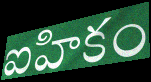
ఐహికం